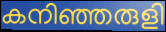
കനിഞ്ഞരുളി